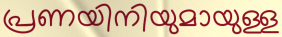
പ്രണയിനിയുമായുള്ള